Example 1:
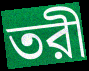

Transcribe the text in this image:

তরী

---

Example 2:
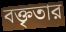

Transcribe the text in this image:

বক্তৃতার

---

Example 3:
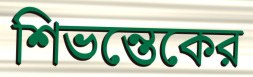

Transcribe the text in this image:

শিভন্তেকের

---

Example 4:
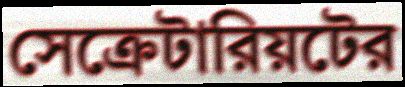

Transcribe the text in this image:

সেক্রেটারিয়টের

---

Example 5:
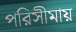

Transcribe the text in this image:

পরিসীমায়